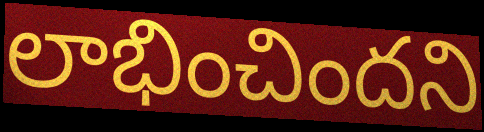
లాభించిందని